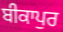
ਬੀਕਾਪੁਰ